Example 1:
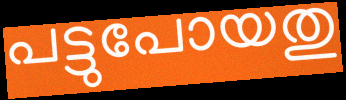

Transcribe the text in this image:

പട്ടുപോയതു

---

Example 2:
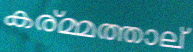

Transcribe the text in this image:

കര്മ്മത്താല്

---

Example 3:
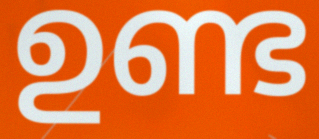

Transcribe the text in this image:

ഉണ്ട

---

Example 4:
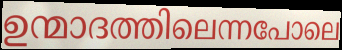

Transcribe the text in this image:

ഉന്മാദത്തിലെന്നപോലെ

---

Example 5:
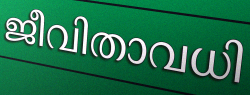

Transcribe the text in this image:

ജീവിതാവധി